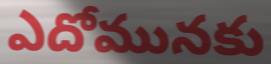
ఎదోమునకు